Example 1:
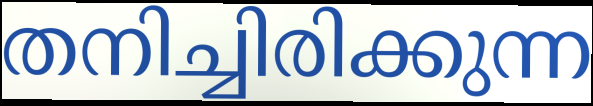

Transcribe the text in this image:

തനിച്ചിരിക്കുന്ന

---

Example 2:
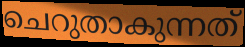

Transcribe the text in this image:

ചെറുതാകുന്നത്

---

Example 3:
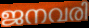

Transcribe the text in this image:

ജനവരി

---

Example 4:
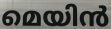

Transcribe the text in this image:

മെയിൻ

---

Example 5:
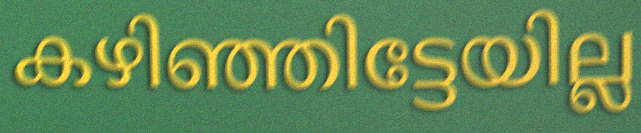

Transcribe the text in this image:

കഴിഞ്ഞിട്ടേയില്ല